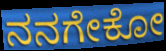
ನನಗೇಕೋ